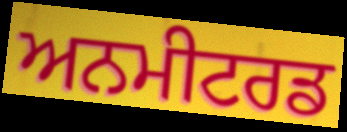
ਅਨਮੀਟਰਡ